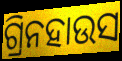
ଗ୍ରିନହାଉସ